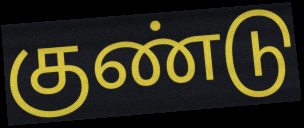
குண்டு